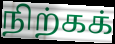
நிற்கக்